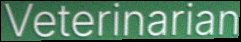
Veterinarian